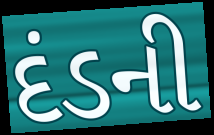
દંડની